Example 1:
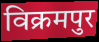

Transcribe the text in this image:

विक्रमपुर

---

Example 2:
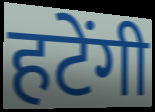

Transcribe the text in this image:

हटेंगी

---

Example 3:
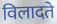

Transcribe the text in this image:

विलादते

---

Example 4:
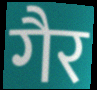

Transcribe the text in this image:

गैर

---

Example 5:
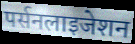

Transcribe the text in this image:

पर्सनलाइजेशन